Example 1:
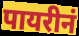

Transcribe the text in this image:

पायरीनं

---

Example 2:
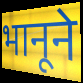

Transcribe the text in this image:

भानूने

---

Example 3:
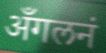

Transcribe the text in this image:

अँगलनं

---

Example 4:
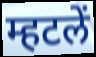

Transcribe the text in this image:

म्हटलें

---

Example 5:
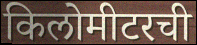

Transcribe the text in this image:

किलोमीटरची